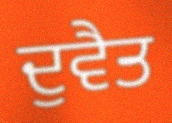
ਦੁਵੈਤ